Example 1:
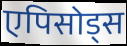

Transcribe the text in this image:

एपिसोड्स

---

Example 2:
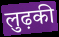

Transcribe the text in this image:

लुढ़की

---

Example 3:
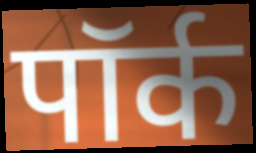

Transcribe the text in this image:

पॉर्क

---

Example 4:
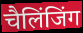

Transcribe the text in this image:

चैलिंजिंग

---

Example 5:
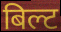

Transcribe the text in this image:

बिल्‍ट